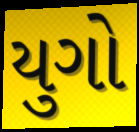
યુગો